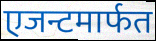
एजन्टमार्फत